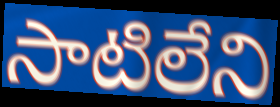
సాటిలేని